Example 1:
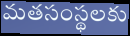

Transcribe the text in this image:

మతసంస్థలకు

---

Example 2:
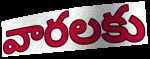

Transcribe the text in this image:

వారలకు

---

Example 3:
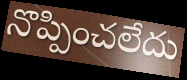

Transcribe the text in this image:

నొప్పించలేదు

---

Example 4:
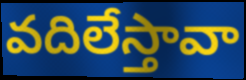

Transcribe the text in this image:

వదిలేస్తావా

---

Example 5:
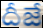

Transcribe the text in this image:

దీజే